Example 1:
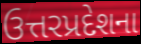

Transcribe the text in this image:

ઉત્તરપ્રદેશના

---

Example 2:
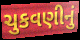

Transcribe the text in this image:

ચુકવણીનું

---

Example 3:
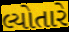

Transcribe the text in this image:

લ્યોતારે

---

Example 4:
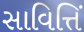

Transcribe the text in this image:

સાવિત્તિં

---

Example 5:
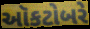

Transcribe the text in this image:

ઑકટોબરે